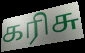
கரிசு